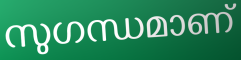
സുഗന്ധമാണ്